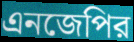
এনজেপির